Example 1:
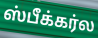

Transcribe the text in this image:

ஸ்பீக்கர்ல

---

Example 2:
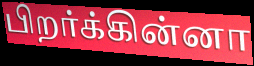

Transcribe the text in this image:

பிறர்க்கின்னா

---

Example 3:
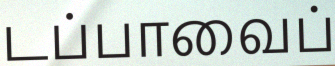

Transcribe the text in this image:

டப்பாவைப்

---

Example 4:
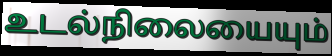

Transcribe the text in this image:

உடல்நிலையையும்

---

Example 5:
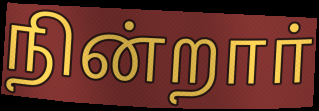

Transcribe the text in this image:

நின்றார்